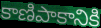
కాణిపాకానికి